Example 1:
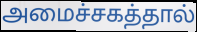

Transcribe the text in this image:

அமைச்சகத்தால்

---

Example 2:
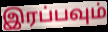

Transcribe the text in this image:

இரப்பவும்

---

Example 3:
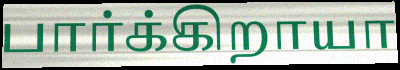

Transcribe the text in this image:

பார்க்கிறாயா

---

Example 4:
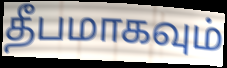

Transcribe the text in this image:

தீபமாகவும்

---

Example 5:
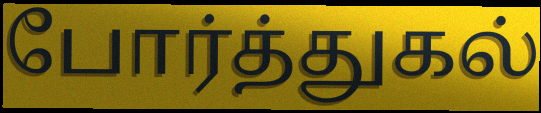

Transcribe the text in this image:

போர்த்துகல்